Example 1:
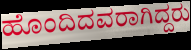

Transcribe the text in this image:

ಹೊಂದಿದವರಾಗಿದ್ದರು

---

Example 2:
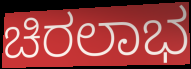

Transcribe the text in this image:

ಚಿರಲಾಭ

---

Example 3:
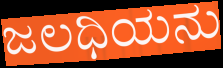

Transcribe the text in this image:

ಜಲಧಿಯನು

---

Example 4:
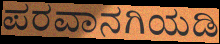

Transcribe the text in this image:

ಪರವಾನಗಿಯಡಿ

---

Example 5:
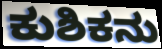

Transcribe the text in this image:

ಕುಶಿಕನು